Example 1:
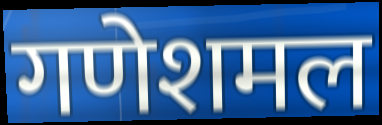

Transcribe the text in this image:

गणेशमल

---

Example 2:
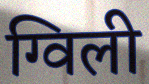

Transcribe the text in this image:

ग्विली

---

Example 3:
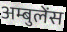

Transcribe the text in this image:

अम्बुलेंस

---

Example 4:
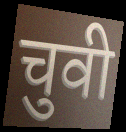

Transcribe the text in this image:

चुवी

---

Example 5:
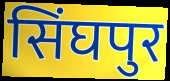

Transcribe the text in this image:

सिंघपुर